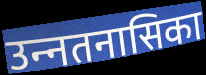
उन्नतनासिका